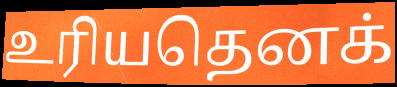
உரியதெனக்